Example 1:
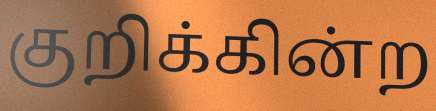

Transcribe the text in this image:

குறிக்கின்ற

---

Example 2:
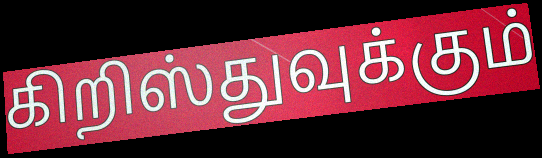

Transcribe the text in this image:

கிறிஸ்துவுக்கும்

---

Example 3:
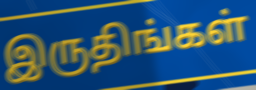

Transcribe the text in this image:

இருதிங்கள்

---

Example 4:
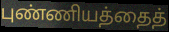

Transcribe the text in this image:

புண்ணியத்தைத்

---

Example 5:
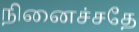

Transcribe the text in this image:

நினைச்சதே